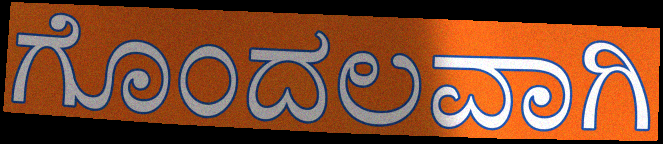
ಗೊಂದಲವಾಗಿ